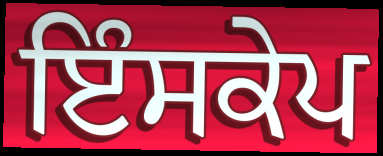
ਇੰਸਕੇਪ